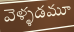
వెళ్ళడమూ